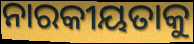
ନାରକୀୟତାକୁ